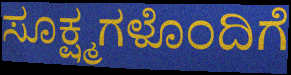
ಸೂಕ್ಷ್ಮಗಳೊಂದಿಗೆ